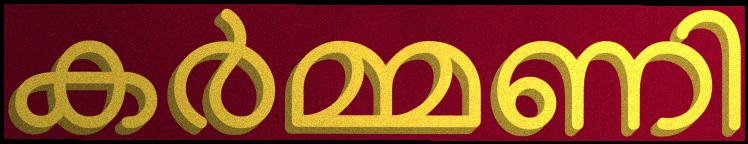
കർമ്മണി